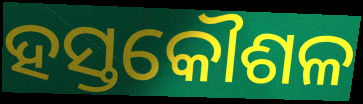
ହସ୍ତକୌଶଳ